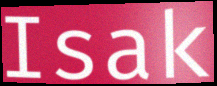
Isak